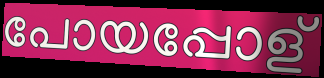
പോയപ്പോള്